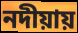
নদীয়ায়